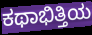
ಕಥಾಭಿತ್ತಿಯ